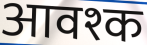
आवश्क